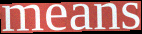
means